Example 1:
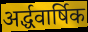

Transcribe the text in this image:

अर्द्धवार्षिक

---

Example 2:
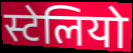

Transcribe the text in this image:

स्टेलियो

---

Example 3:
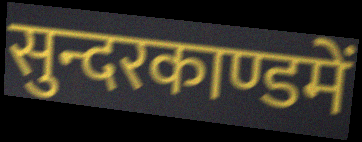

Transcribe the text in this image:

सुन्दरकाण्डमें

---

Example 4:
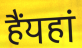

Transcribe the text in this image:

हैंयहां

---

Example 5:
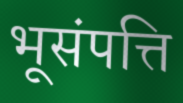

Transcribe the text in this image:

भूसंपत्ति